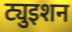
ट्युइशन